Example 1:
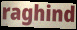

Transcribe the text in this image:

raghind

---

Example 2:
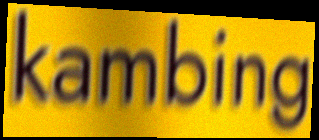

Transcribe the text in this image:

kambing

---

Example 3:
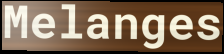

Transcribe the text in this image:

Melanges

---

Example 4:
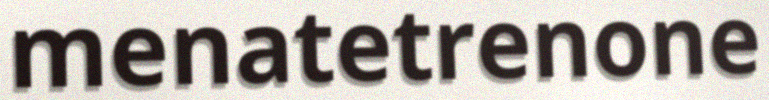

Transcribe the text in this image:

menatetrenone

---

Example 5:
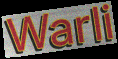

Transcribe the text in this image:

Warli